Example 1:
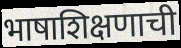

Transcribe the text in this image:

भाषाशिक्षणाची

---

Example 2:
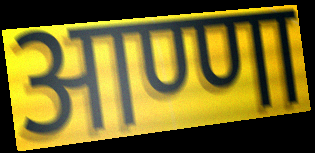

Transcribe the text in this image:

आण्णा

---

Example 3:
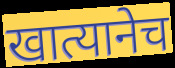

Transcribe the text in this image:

खात्यानेच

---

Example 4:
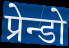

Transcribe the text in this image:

प्रेन्डो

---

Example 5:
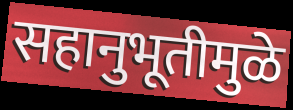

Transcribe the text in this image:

सहानुभूतीमुळे